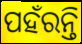
ପହଁରନ୍ତି